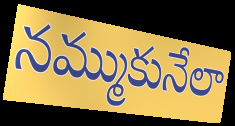
నమ్ముకునేలా